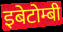
इबेटोम्बी